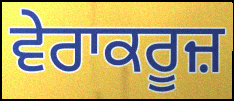
ਵੇਰਾਕਰੂਜ਼